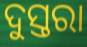
ଦୁସ୍ତରା